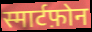
स्मार्टफ़ोन